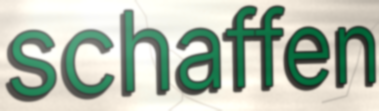
schaffen